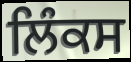
ਲਿੰਕਸ